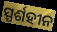
ସ୍ପର୍ଶହୀନ